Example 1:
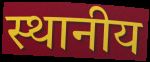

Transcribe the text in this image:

स्थानीय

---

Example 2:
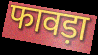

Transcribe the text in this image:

फावड़ा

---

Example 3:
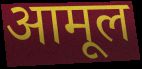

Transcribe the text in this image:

आमूल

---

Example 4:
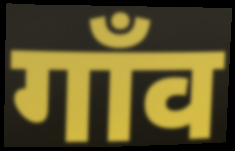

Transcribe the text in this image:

गाँव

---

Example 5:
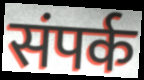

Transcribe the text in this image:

संपर्क